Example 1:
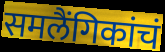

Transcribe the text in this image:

समलैंगिकांचं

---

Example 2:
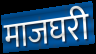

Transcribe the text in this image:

माजघरी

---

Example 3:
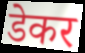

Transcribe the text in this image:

डेकर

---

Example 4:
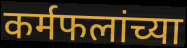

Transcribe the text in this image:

कर्मफलांच्या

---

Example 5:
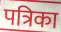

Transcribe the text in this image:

पत्रिका